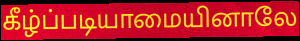
கீழ்ப்படியாமையினாலே